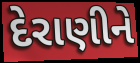
દેરાણીને